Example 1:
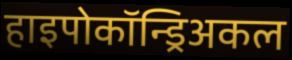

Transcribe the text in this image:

हाइपोकॉन्ड्रिअकल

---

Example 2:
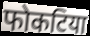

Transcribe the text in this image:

फोकटिया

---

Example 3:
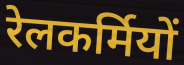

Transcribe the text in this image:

रेलकर्मियों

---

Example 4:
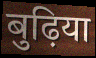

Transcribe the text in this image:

बुढ़िया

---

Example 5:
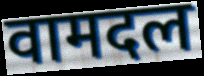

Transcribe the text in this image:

वामदल